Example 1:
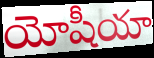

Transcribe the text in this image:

యోషీయా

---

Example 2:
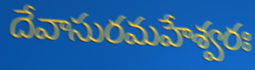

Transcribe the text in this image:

దేవాసురమహేశ్వరః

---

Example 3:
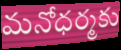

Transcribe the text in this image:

మనోధర్మకు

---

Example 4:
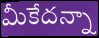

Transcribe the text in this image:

మీకేదన్నా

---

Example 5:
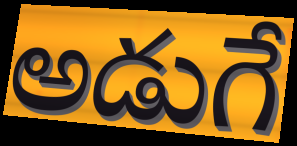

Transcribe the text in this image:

అడుగే